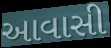
આવાસી